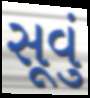
સૂવું